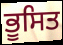
ਭੂਸਿਤ